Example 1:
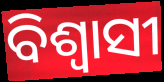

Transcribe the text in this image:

ବିଶ୍ୱାସୀ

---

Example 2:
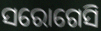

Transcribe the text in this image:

ସରୋଗେସି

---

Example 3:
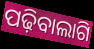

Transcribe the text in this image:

ପଢ଼ିବାଲାଗି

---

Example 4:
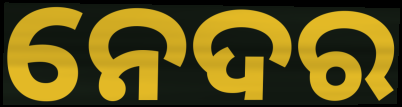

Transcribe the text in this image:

ନେଦର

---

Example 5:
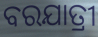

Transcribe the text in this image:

ବରଯାତ୍ରୀ